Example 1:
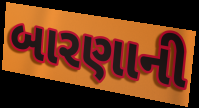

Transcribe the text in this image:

બારણાની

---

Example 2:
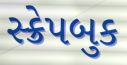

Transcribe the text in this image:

સ્ક્રેપબુક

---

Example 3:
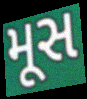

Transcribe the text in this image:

મૂસ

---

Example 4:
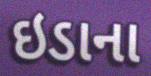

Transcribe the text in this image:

ઇડાના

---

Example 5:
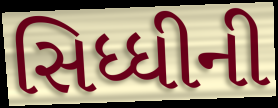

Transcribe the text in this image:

સિધ્ધીની